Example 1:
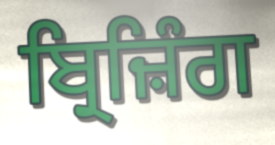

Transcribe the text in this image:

ਬ੍ਰਿਜ਼ਿੰਗ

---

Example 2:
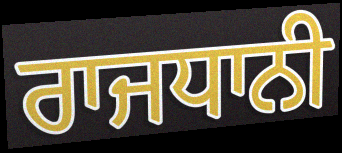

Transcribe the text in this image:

ਰਾਜਧਾਨੀ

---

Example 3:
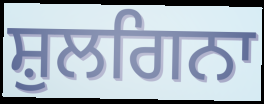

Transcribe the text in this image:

ਸ਼ੁਲਗਿਨਾ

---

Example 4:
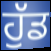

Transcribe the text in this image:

ਹੁੱਡ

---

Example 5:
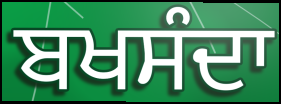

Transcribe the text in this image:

ਬਖਸੰਦਾ